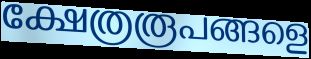
ക്ഷേത്രരൂപങ്ങളെ